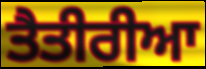
ਤੈਤੀਰੀਆ